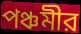
পঞ্চমীর